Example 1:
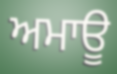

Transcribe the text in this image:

ਅਮਾਊ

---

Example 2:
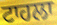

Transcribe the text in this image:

ਟਾਹਲਾ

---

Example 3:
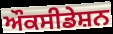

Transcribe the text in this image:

ਔਕਸੀਡੇਸ਼ਨ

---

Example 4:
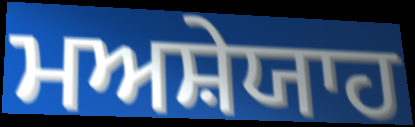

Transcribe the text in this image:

ਮਅਸ਼ੇਯਾਹ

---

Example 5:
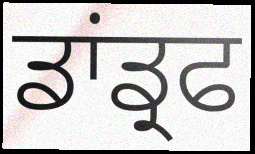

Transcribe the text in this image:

ਡਾਂਡ੍ਰਫ